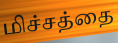
மிச்சத்தை